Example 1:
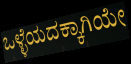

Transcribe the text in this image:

ಒಳ್ಳೆಯದಕ್ಕಾಗಿಯೇ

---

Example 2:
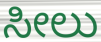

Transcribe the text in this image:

ಸೀಲು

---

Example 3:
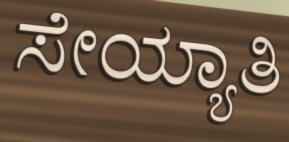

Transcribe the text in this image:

ಸೇಯ್ಯಾತಿ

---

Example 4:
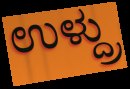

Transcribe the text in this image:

ಉಳ್ದ್ರು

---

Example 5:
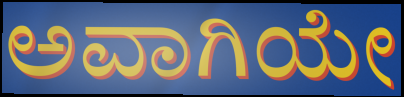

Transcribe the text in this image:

ಅವಾಗಿಯೇ